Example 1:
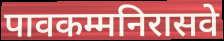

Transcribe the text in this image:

पावकम्मनिरासवे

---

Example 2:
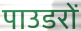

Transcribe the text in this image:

पाउडरों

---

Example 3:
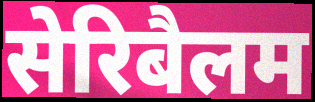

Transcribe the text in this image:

सेरिबैलम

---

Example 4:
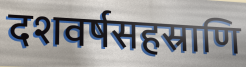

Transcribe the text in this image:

दशवर्षसहस्राणि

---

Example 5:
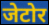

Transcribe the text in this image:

जेटोर